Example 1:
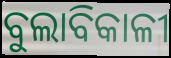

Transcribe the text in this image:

ବୁଲାବିକାଳୀ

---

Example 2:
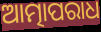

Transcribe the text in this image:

ଆତ୍ମାପରାଧ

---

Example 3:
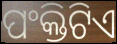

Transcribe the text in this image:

ପଂକ୍ତିଟିଏ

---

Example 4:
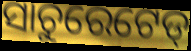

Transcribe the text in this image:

ସାଚୁରେଟେଡ୍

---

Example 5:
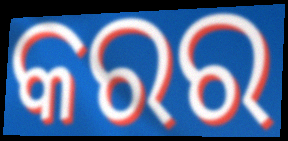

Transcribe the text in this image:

କରର